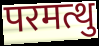
परमत्थु